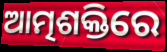
ଆତ୍ମଶକ୍ତିରେ